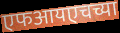
एफआयएचच्या